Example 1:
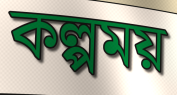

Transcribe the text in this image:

কল্পময়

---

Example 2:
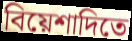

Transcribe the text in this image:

বিয়েশাদিতে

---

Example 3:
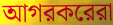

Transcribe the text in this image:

আগরকরেরা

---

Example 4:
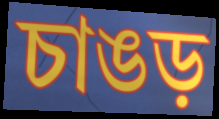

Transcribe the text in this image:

চাঙড়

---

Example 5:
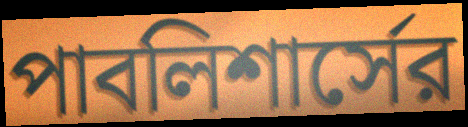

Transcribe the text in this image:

পাবলিশার্সের